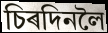
চিৰদিনলৈ